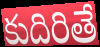
కుదిరితే